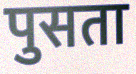
पुसता